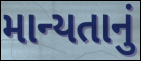
માન્યતાનું